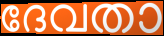
ദേവതാ